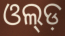
ଓଲ୍ଡ଼